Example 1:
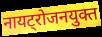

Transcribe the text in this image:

नायट्रोजनयुक्त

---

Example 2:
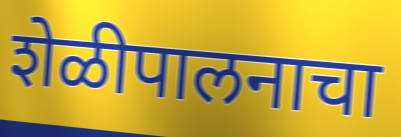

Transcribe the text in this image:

शेळीपालनाचा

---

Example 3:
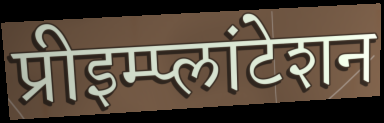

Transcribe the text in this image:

प्रीइम्प्लांटेशन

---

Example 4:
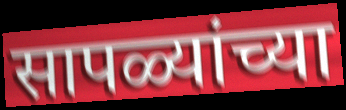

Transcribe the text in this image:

सापळ्यांच्या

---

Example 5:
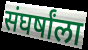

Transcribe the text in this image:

संघर्षांला